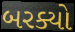
બરક્યો